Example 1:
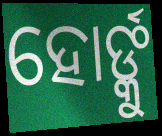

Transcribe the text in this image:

ହୋର୍ଙ୍କୁ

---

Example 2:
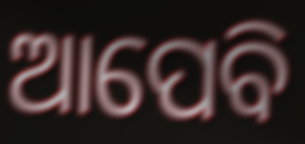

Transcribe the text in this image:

ଆପେବି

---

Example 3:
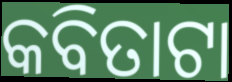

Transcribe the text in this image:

କବିତାଟା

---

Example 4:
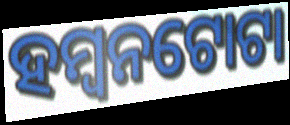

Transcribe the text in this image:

ହମ୍ବନଟୋଟା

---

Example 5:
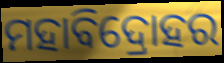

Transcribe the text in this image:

ମହାବିଦ୍ରୋହର